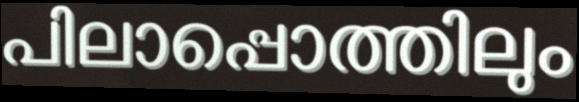
പിലാപ്പൊത്തിലും